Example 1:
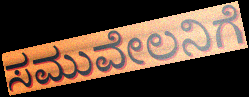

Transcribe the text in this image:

ಸಮುವೇಲನಿಗೆ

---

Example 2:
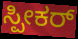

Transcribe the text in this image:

ಸ್ಪೀಕರ್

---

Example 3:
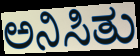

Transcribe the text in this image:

ಅನಿಸಿತು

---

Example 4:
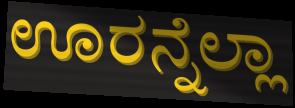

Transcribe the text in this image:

ಊರನ್ನೆಲ್ಲಾ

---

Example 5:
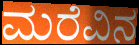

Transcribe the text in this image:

ಮರೆವಿನ